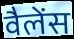
वैलेंस